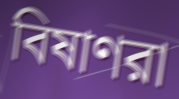
বিষাণরা